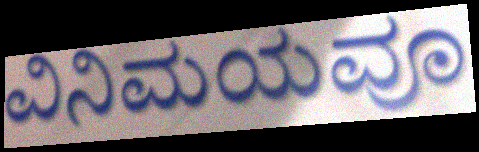
ವಿನಿಮಯವೂ